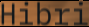
Hibri